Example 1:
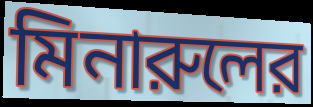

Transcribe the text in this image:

মিনারুলের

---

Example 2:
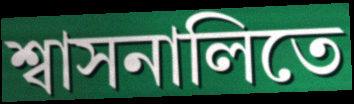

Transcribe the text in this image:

শ্বাসনালিতে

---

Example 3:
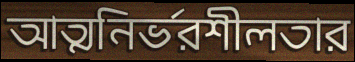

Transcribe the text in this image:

আত্মনির্ভরশীলতার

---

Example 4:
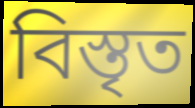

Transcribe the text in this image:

বিস্তৃত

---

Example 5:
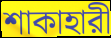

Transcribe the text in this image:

শাকাহারী